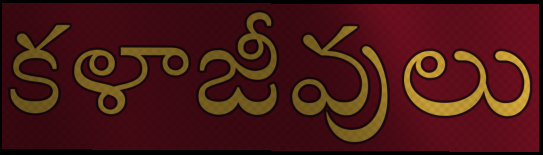
కళాజీవులు